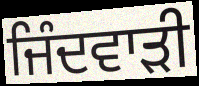
ਜਿੰਦਵਾੜੀ